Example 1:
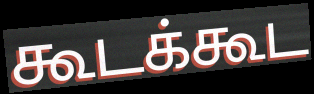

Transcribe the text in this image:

கூடக்கூட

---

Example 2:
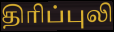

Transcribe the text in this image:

திரிப்புலி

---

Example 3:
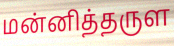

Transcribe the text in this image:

மன்னித்தருள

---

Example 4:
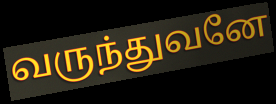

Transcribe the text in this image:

வருந்துவனே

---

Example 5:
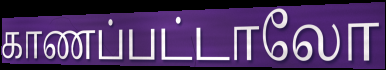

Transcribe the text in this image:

காணப்பட்டாலோ